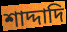
শাদ্দাদি